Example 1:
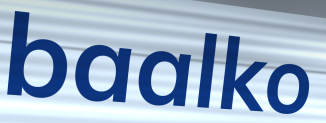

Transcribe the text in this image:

baalko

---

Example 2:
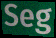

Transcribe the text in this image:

Seg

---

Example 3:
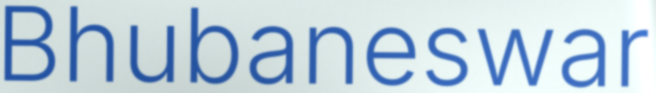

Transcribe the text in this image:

Bhubaneswar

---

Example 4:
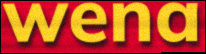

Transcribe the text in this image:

wena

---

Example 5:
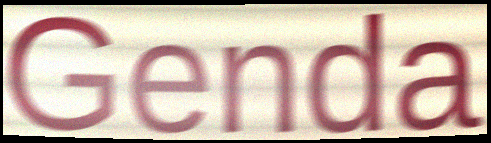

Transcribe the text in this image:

Genda